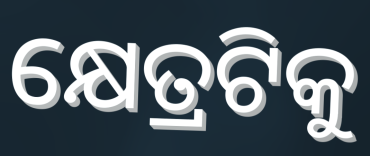
କ୍ଷେତ୍ରଟିକୁ